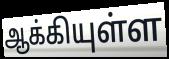
ஆக்கியுள்ள